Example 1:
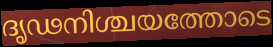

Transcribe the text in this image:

ദൃഢനിശ്ചയത്തോടെ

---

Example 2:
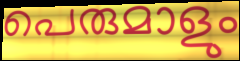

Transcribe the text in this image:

പെരുമാളും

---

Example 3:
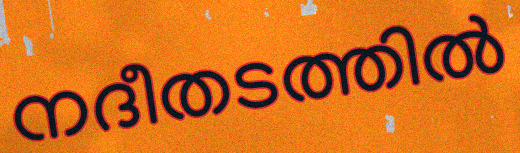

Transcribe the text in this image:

നദീതടത്തിൽ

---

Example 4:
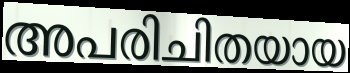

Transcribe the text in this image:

അപരിചിതയായ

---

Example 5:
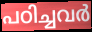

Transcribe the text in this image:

പഠിച്ചവർ